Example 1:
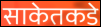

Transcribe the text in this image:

साकेतकडे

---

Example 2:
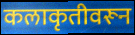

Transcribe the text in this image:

कलाकृतीवरून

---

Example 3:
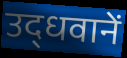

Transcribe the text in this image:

उद्धवानें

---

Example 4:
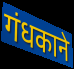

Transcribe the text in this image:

गंधकाने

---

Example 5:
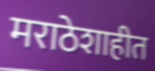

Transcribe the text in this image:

मराठेशाहीत